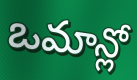
ఒమాన్లో